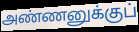
அண்ணனுக்குப்